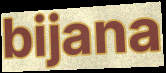
bijana